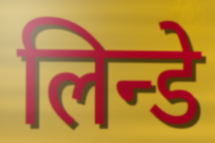
लिन्डे